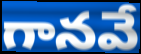
గానవే